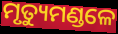
ମୃତ୍ୟୁମଣ୍ଡଳେ